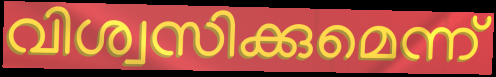
വിശ്വസിക്കുമെന്ന്